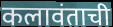
कलावंताची